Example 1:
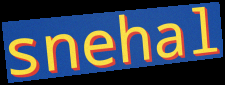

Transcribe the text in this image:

snehal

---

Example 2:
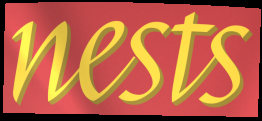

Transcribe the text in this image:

nests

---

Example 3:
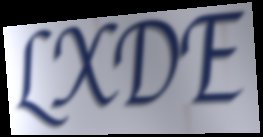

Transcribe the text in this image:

LXDE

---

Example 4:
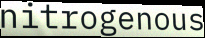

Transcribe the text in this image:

nitrogenous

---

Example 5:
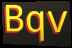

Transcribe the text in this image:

Bqv